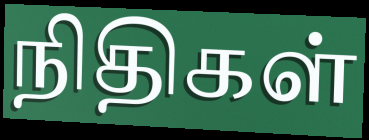
நிதிகள்